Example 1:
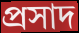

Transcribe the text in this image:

প্ৰসাদ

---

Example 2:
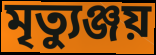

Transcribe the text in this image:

মৃত্যুঞ্জয়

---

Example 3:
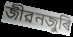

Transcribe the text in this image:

জীৱনজুৰি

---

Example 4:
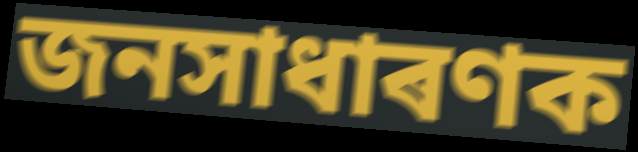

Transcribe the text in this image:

জনসাধাৰণক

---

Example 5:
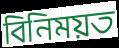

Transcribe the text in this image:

বিনিময়ত